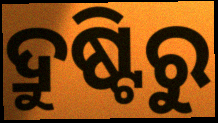
ଦ୍ରୁଷ୍ଟିରୁ